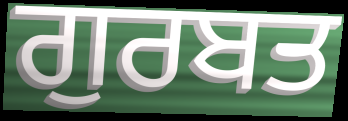
ਗੁਰਬਤ